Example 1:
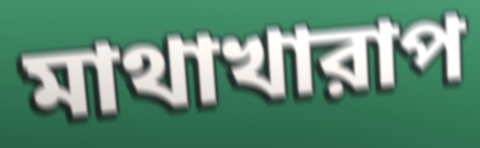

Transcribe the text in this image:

মাথাখারাপ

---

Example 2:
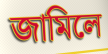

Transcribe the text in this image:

জামিলে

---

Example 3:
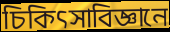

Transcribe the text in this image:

চিকিৎসাবিজ্ঞানে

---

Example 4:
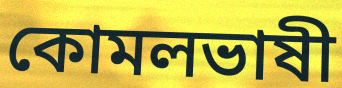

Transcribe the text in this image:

কোমলভাষী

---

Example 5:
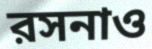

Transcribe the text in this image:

রসনাও